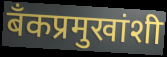
बँकप्रमुखांशी